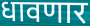
धावणार